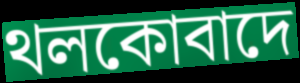
থলকোবাদে